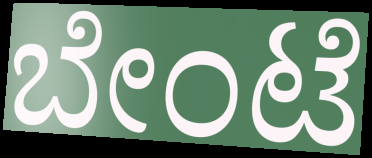
ಬೇಂಟೆ